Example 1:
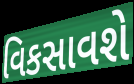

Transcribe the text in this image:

વિકસાવશે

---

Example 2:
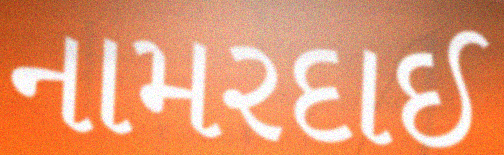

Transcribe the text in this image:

નામરદાઈ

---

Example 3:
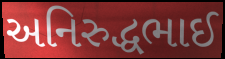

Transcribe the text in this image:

અનિરુદ્ધભાઈ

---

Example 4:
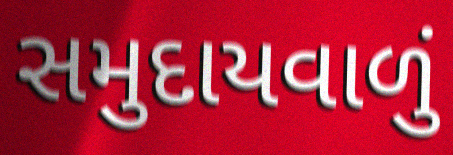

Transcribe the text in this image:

સમુદાયવાળું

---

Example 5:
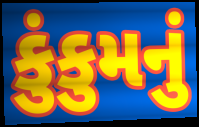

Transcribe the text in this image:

કુંકુમનું